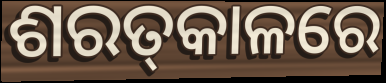
ଶରତ୍‌କାଳରେ